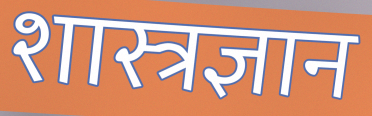
शास्त्रज्ञान